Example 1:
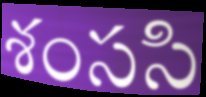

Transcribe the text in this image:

శంససి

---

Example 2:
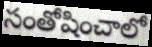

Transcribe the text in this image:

సంతోషించాలో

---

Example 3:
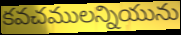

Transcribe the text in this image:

కవచములన్నియును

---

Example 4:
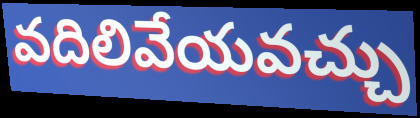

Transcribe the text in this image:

వదిలివేయవచ్చు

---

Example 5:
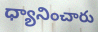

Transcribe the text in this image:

ధ్యానించారు